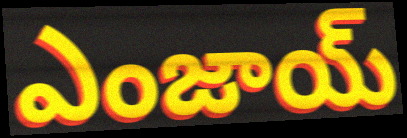
ఎంజాయ్